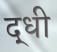
द्धी